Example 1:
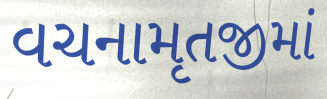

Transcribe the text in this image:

વચનામૃતજીમાં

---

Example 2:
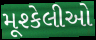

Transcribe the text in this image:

મૂશ્કેલીઓ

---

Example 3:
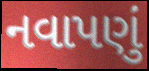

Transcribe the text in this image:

નવાપણું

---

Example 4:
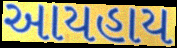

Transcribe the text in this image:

આયહાય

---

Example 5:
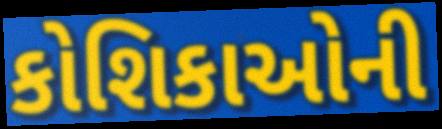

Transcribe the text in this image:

કોશિકાઓની